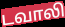
டவாலி